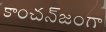
కాంచన్‌జంగా